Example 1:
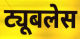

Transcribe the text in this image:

ट्यूबलेस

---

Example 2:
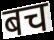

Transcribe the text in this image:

बच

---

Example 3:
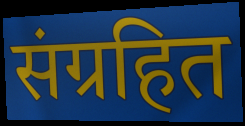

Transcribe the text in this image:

संग्रहित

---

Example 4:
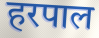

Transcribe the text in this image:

हरपाल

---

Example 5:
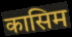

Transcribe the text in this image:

कासिम